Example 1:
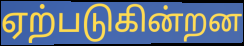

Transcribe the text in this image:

ஏற்படுகின்றன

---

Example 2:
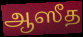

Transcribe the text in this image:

ஆஸீத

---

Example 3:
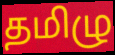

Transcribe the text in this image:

தமிழு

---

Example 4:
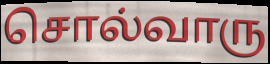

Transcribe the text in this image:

சொல்வாரு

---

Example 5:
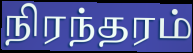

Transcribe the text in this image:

நிரந்தரம்